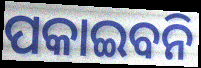
ପକାଇବନି